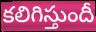
కలిగిస్తుందీ